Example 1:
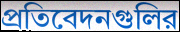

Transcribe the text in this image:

প্রতিবেদনগুলির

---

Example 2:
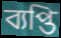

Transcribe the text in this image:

ব্যপ্তি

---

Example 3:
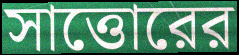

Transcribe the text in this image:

সাত্তোরের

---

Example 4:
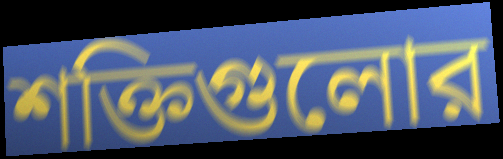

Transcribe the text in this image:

শক্তিগুলোর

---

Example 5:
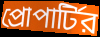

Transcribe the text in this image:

প্রোপার্টির